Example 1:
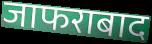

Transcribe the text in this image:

जाफराबाद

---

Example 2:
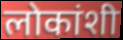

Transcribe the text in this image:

लोकांशी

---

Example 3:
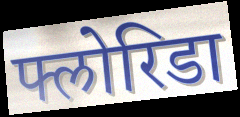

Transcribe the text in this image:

फ्लोरिडा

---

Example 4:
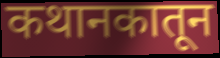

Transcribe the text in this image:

कथानकातून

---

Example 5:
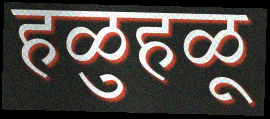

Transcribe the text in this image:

हळुहळू